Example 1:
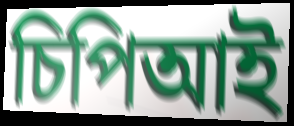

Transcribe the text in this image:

চিপিআই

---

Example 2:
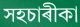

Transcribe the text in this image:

সহচাৰীকা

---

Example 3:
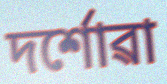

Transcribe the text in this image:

দৰ্শোৱা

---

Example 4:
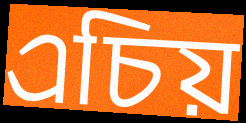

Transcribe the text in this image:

এচিয়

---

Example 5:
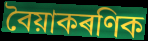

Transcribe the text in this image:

বৈয়াকৰণিক